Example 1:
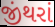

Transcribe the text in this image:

જીંથરાં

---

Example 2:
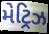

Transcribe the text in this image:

મેટ્રિઝ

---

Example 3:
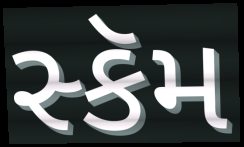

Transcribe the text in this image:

સ્કૅમ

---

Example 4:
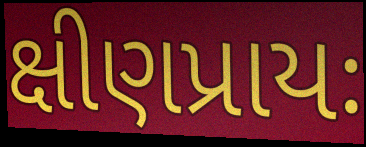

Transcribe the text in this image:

ક્ષીણપ્રાયઃ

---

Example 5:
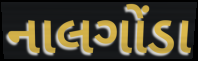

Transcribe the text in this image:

નાલગોંડા